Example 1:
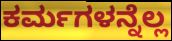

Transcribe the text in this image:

ಕರ್ಮಗಳನ್ನೆಲ್ಲ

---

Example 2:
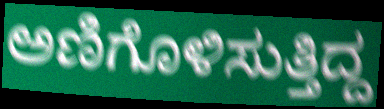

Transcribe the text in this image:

ಅಣಿಗೊಳಿಸುತ್ತಿದ್ದ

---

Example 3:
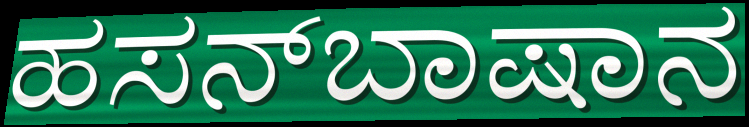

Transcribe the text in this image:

ಹಸನ್‌ಬಾಷಾನ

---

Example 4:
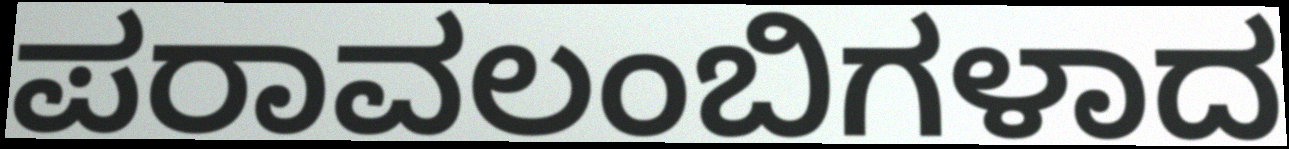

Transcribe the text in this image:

ಪರಾವಲಂಬಿಗಳಾದ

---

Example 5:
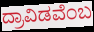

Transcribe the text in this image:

ದ್ರಾವಿಡವೆಂಬ